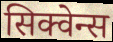
सिक्वेन्स